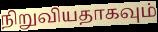
நிறுவியதாகவும்